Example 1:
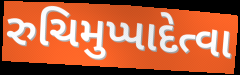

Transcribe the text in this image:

રુચિમુપ્પાદેત્વા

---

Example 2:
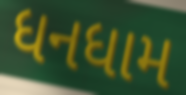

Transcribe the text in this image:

ધનધામ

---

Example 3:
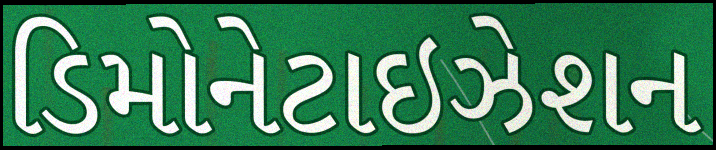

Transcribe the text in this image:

ડિમોનેટાઇઝેશન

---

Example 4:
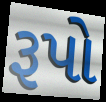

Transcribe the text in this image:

રૂપો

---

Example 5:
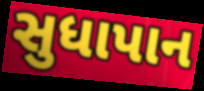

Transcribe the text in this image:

સુધાપાન